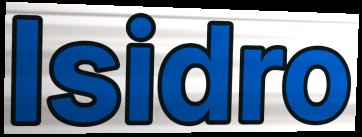
Isidro